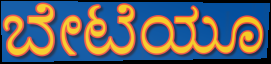
ಬೇಟೆಯೂ